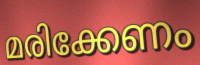
മരിക്കേണം